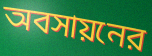
অবসায়নের